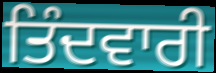
ਤਿੰਦਵਾਰੀ